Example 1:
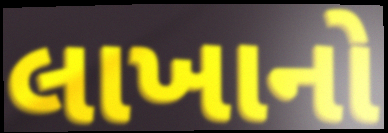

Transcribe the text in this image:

લાખાનો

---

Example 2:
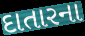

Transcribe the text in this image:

દાતારના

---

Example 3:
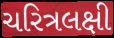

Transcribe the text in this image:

ચરિત્રલક્ષી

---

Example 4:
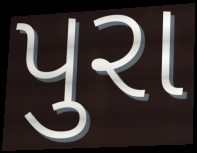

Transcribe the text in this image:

પુરા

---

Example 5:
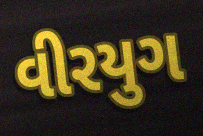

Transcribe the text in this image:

વીરયુગ